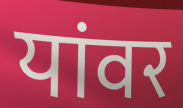
यांवर